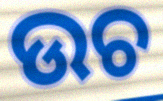
ଉଚ